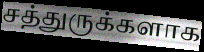
சத்துருக்களாக